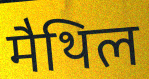
मैथिल